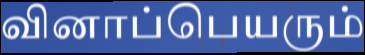
வினாப்பெயரும்